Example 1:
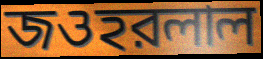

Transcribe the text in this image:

জওহরলাল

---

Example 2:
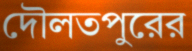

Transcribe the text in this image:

দৌলতপুরের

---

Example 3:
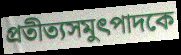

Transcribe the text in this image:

প্রতীত্যসমুৎপাদকে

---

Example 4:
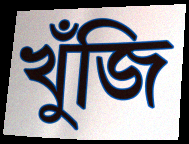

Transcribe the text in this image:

খুঁজি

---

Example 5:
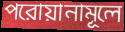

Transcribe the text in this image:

পরোয়ানামূলে